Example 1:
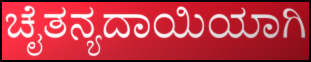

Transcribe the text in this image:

ಚೈತನ್ಯದಾಯಿಯಾಗಿ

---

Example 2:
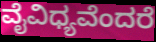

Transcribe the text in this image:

ವೈವಿಧ್ಯವೆಂದರೆ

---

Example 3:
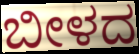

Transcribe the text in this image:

ಬೀಳದ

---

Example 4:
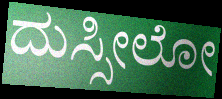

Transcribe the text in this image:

ದುಸ್ಸೀಲೋ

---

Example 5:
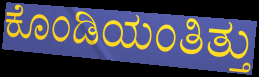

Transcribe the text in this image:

ಕೊಂಡಿಯಂತಿತ್ತು